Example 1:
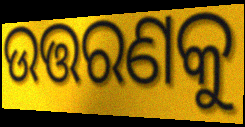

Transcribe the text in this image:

ଉତ୍ତରଣକୁ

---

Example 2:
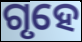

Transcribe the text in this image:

ଗୃହେ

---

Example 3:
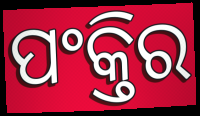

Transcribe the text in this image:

ପଂକ୍ତିର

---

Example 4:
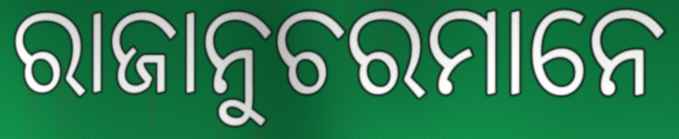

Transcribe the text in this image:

ରାଜାନୁଚରମାନେ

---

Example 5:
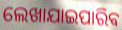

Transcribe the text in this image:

ଲେଖାଯାଇପାରିବ